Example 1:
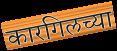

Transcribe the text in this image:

कारगिलच्या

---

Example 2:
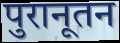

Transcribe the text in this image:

पुरानूतन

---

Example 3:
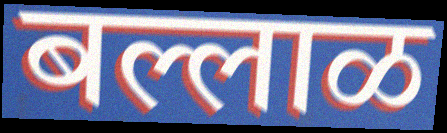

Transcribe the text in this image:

बल्लाळ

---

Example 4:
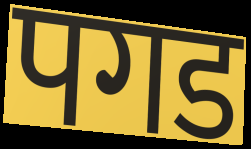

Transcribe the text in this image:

पगड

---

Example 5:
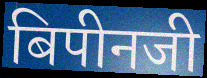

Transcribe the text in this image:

बिपीनजी